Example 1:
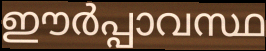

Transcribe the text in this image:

ഈർപ്പാവസ്ഥ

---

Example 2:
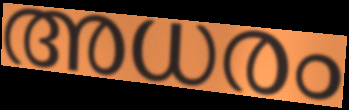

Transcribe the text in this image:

അധരം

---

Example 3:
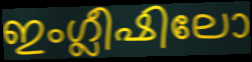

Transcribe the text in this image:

ഇംഗ്ലീഷിലോ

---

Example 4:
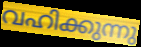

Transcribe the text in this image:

വഹിക്കുന്നു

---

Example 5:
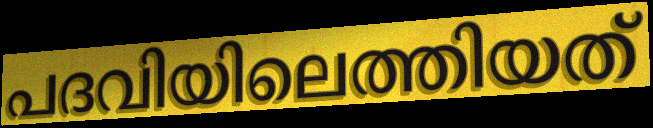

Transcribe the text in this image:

പദവിയിലെത്തിയത്